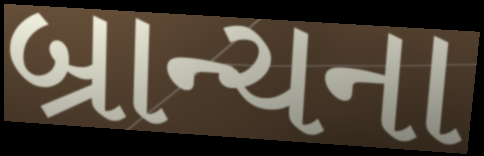
બ્રાન્ચના